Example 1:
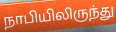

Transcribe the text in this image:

நாபியிலிருந்து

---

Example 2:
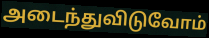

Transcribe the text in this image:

அடைந்துவிடுவோம்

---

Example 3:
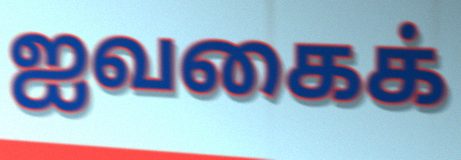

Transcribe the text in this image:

ஐவகைக்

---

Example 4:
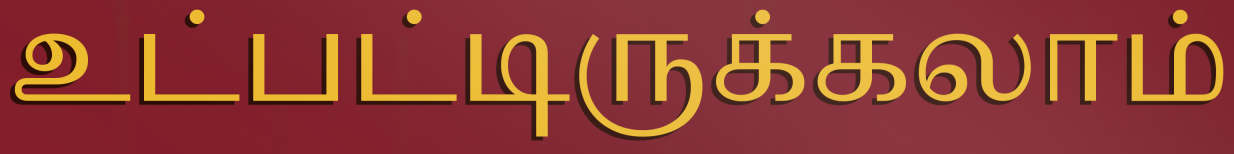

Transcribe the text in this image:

உட்பட்டிருக்கலாம்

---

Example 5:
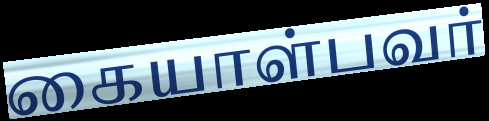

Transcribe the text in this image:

கையாள்பவர்